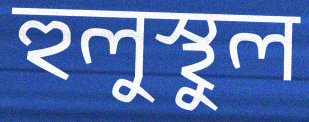
হুলুস্থুল